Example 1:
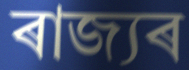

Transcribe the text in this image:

ৰাজ্যৰ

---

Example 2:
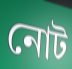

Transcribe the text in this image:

নোট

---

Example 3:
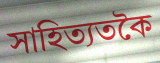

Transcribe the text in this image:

সাহিত্যতকৈ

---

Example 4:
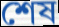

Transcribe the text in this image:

শেষ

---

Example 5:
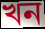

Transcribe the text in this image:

খন